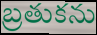
బ్రతుకను